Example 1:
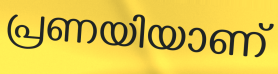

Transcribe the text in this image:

പ്രണയിയാണ്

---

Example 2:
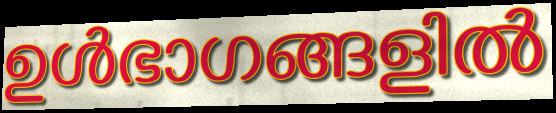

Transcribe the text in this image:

ഉൾഭാഗങ്ങളിൽ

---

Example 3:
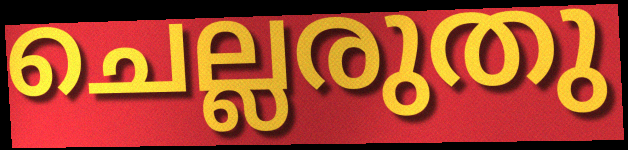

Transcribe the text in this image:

ചെല്ലരുതു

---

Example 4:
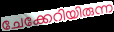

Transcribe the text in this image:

ചേക്കേറിയിരുന്ന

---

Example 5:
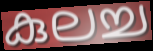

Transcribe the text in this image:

കുലച്ച